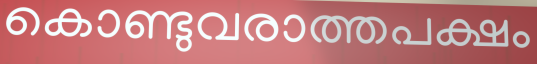
കൊണ്ടുവരാത്തപക്ഷം